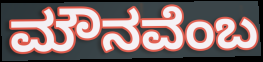
ಮೌನವೆಂಬ